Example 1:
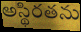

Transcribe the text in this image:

అస్థిరతను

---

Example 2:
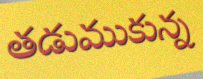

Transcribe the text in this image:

తడుముకున్న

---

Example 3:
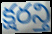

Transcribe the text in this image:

క్షరన్తి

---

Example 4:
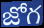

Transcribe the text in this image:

జోగ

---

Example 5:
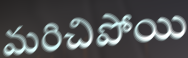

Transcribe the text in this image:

మరిచిపోయి